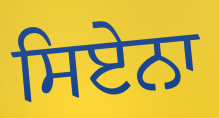
ਸਿਏਨਾ